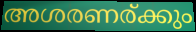
അശരണര്ക്കും